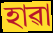
হাৱা